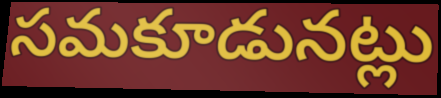
సమకూడునట్లు